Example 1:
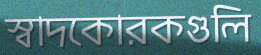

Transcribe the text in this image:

স্বাদকোরকগুলি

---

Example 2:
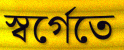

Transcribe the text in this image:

স্বর্গেতে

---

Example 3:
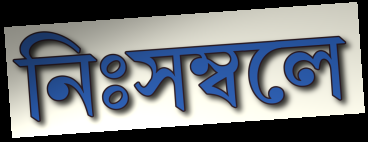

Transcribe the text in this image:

নিঃসম্বলে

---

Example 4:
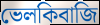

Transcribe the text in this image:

ভেলকিবাজি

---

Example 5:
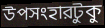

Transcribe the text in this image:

উপসংহারটুকু